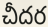
చీదర